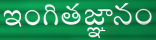
ఇంగితజ్ఞానం